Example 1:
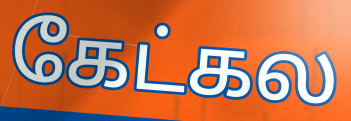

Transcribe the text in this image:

கேட்கல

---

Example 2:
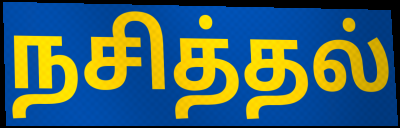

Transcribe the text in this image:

நசித்தல்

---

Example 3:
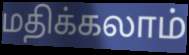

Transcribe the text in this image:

மதிக்கலாம்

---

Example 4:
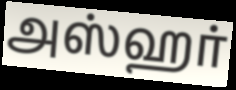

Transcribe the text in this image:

அஸ்ஹர்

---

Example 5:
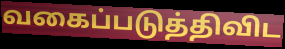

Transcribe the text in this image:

வகைப்படுத்திவிட